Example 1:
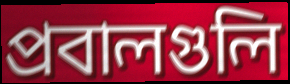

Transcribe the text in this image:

প্রবালগুলি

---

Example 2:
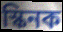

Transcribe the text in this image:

স্কিনক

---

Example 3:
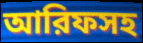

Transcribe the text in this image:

আরিফসহ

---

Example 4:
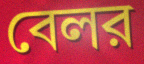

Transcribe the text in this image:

বেলর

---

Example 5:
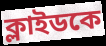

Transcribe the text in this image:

ক্লাইডকে